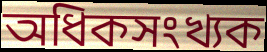
অধিকসংখ্যক